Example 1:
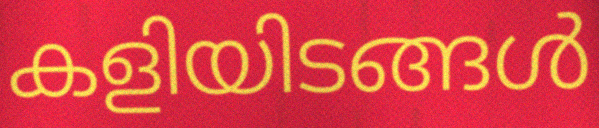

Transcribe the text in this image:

കളിയിടങ്ങൾ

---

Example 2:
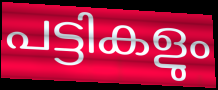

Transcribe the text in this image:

പട്ടികളും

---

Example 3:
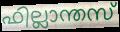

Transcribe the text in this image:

ഫില്ലാന്തസ്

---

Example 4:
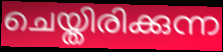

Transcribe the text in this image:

ചെയ്തിരിക്കുന്ന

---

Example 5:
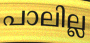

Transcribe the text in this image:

പാലില്ല